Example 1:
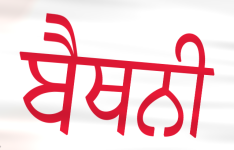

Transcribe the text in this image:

ਬੈਥਨੀ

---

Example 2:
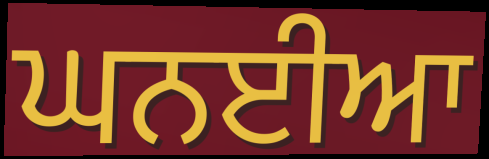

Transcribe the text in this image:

ਘਨਈਆ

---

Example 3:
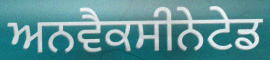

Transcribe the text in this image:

ਅਨਵੈਕਸੀਨੇਟੇਡ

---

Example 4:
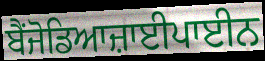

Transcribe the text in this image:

ਬੈਂਜੋਡਿਆਜ਼ਾਈਪਾਈਨ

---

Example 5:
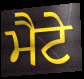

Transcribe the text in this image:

ਮੈਟੇ